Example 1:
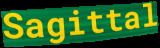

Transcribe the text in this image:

Sagittal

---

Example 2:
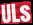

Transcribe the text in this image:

ULs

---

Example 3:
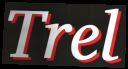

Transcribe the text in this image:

Trel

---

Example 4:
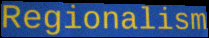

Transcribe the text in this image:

Regionalism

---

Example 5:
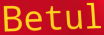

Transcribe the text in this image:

Betul